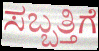
ಸಬ್ಬತ್ತಿಗೆ